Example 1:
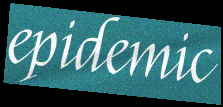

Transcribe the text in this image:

epidemic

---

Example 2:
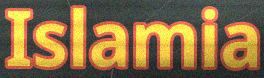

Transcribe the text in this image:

Islamia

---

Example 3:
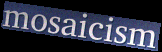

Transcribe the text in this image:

mosaicism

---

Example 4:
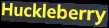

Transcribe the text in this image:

Huckleberry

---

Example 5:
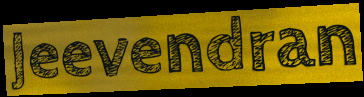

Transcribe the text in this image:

Jeevendran